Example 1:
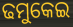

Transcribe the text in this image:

ଢମୁକେଇ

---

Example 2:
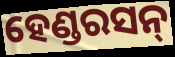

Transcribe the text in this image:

ହେଣ୍ଡରସନ୍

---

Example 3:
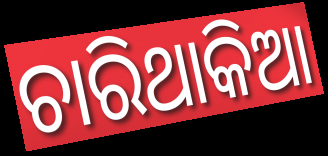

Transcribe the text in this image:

ଚାରିଥାକିଆ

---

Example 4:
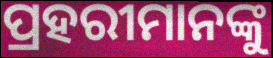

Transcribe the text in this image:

ପ୍ରହରୀମାନଙ୍କୁ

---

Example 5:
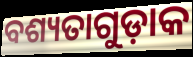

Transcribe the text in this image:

ବଶ୍ୟତାଗୁଡ଼ାକ